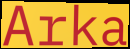
Arka